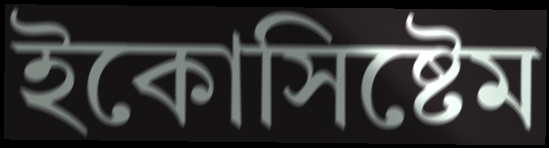
ইকোসিষ্টেম